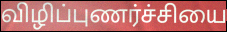
விழிப்புணர்ச்சியை